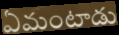
ఏమంటాడు